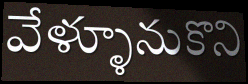
వేళ్ళూనుకొని